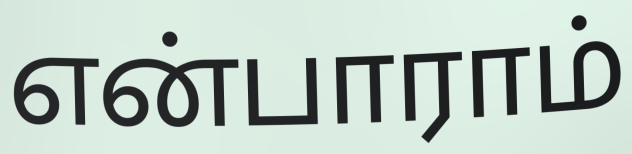
என்பாராம்